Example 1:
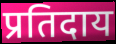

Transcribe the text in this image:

प्रतिदाय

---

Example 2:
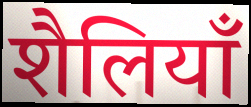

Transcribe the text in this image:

शैलियाँ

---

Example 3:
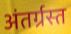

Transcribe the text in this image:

अंतर्ग्रस्त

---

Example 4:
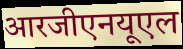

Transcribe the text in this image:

आरजीएनयूएल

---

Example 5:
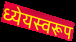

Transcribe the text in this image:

ध्येयस्वरूप